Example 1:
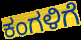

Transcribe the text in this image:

ಕಂಗಳಿಗೆ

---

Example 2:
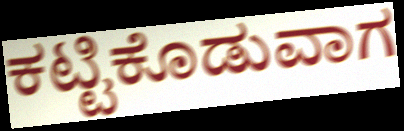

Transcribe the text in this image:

ಕಟ್ಟಿಕೊಡುವಾಗ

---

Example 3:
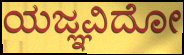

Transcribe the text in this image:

ಯಜ್ಞವಿದೋ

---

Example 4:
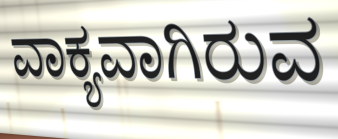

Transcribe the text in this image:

ವಾಕ್ಯವಾಗಿರುವ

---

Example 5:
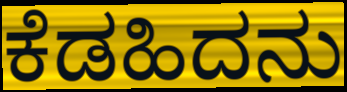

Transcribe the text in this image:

ಕೆಡಹಿದನು